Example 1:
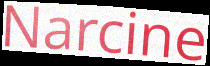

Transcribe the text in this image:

Narcine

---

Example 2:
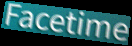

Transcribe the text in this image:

Facetime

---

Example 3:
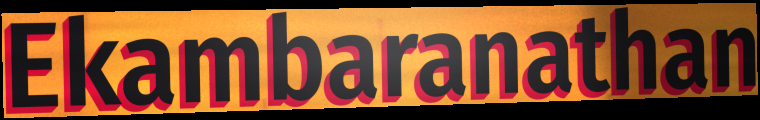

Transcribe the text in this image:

Ekambaranathan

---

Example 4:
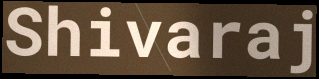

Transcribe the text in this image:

Shivaraj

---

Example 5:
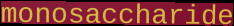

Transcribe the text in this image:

monosaccharide